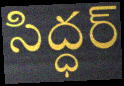
సిద్ధర్